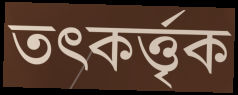
তৎকর্ত্তৃক